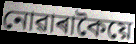
নোৱাৰাকৈয়ে